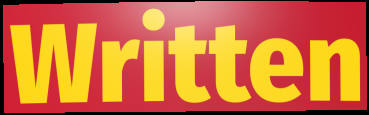
Written